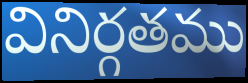
వినిర్గతము